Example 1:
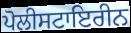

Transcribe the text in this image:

ਪੋਲੀਸਟਾਇਰੀਨ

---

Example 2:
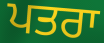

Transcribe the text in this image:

ਪਤਰਾ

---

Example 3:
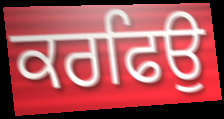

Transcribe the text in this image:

ਕਰਫਿਉ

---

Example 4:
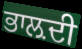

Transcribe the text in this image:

ਭਾਲ਼ਦੀ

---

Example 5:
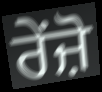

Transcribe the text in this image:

ਰੇਂਜ਼ੋ